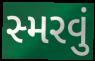
સ્મરવું